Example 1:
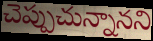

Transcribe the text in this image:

చెప్పుచున్నానని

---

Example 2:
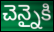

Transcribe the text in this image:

చెన్నైకి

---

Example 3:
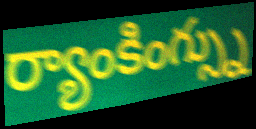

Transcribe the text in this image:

ర్యాంకింగ్స్ను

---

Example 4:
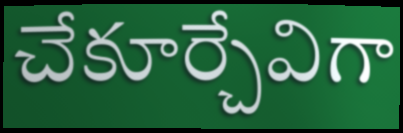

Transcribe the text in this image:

చేకూర్చేవిగా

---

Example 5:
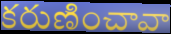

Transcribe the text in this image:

కరుణించావా